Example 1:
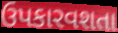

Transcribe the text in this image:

ઉપકારવશતા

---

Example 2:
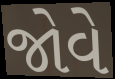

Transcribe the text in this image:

જોવે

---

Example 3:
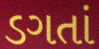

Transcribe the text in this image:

ડગતાં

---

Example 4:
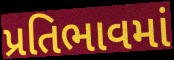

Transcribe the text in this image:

પ્રતિભાવમાં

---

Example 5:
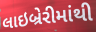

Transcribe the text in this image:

લાઇબ્રેરીમાંથી